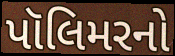
પૉલિમરનો